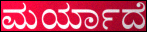
ಮರ್ಯಾದೆ